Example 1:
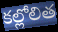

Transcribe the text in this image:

కల్లోలిత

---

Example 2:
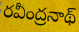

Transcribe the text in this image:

రవీంద్రనాథ్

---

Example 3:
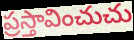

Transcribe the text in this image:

ప్రస్తావించుచు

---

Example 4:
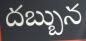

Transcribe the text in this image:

దబ్బున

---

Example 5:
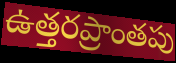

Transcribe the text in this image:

ఉత్తరప్రాంతపు